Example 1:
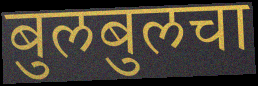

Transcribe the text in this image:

बुलबुलचा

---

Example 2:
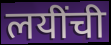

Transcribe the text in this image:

लयींची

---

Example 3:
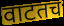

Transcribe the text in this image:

वाटतच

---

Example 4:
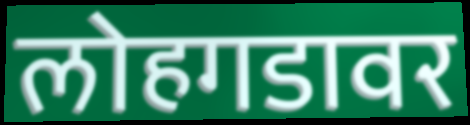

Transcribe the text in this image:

लोहगडावर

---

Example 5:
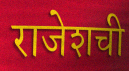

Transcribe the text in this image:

राजेशची